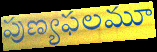
పుణ్యఫలమూ